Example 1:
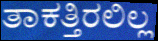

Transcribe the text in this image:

ತಾಕತ್ತಿರಲಿಲ್ಲ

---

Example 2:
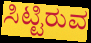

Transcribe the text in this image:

ಸಿಟ್ಟಿರುವ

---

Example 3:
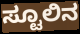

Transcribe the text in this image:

ಸ್ಟೂಲಿನ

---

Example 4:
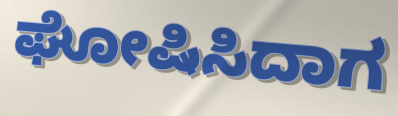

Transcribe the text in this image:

ಘೋಷಿಸಿದಾಗ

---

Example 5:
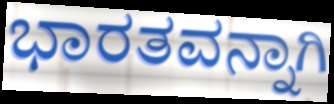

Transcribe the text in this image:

ಭಾರತವನ್ನಾಗಿ